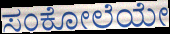
ಸಂಕೋಲೆಯೇ